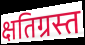
क्षतिग्रस्त